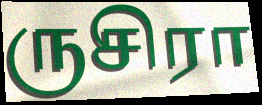
ருசிரா